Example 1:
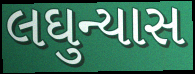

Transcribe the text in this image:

લઘુન્યાસ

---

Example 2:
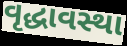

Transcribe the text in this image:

વૃદ્ધાવસ્થા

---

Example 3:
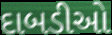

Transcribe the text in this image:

દાબડીઓ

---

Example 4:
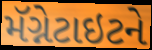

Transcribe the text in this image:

મૅગ્નેટાઇટને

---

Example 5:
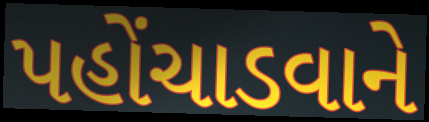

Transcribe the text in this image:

પહોંચાડવાને